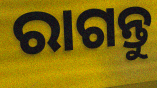
ରାଗନ୍ତୁ